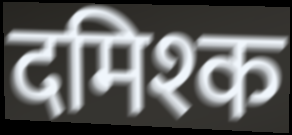
दमिश्क